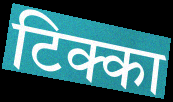
टिक्का